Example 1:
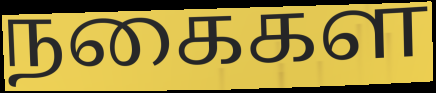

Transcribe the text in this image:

நகைகள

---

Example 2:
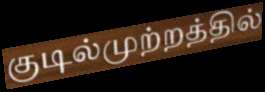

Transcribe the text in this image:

குடில்முற்றத்தில்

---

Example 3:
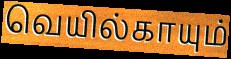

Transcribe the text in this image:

வெயில்காயும்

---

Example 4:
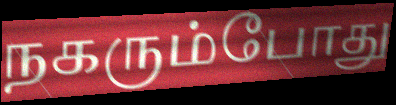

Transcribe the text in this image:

நகரும்போது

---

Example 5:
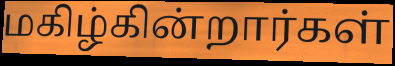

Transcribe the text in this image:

மகிழ்கின்றார்கள்